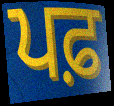
ਪਫ਼